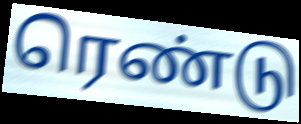
ரெண்டு